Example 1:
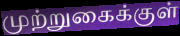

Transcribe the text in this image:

முற்றுகைக்குள்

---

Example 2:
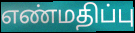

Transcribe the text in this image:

எண்மதிப்பு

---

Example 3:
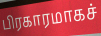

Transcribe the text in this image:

பிரகாரமாகச்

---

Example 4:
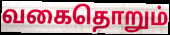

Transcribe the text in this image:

வகைதொறும்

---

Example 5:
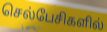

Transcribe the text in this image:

செல்பேசிகளில்